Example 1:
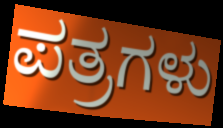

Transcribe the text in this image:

ಪತ್ರಗಳು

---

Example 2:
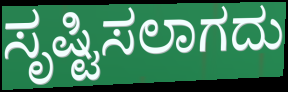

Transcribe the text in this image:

ಸೃಷ್ಟಿಸಲಾಗದು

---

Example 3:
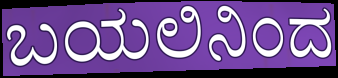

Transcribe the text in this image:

ಬಯಲಿನಿಂದ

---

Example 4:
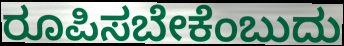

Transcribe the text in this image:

ರೂಪಿಸಬೇಕೆಂಬುದು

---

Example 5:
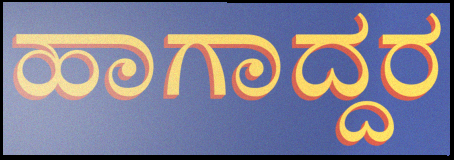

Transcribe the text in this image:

ಹಾಗಾದ್ದರ